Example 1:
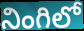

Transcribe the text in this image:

నింగిలో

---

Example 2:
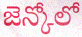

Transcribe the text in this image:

జెన్కోలో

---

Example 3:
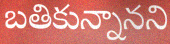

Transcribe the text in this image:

బతికున్నానని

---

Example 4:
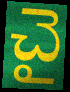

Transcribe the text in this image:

చై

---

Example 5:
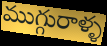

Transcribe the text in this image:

ముగ్గురాళ్ళ